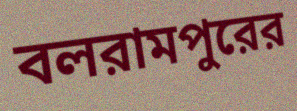
বলরামপুরের